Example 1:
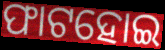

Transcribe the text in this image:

ଫାଟହୋଇ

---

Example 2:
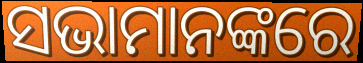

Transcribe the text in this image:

ସଭାମାନଙ୍କରେ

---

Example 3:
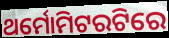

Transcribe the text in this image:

ଥର୍ମୋମିଟରଟିରେ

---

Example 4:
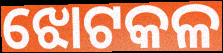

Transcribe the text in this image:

ଝୋଟକଳ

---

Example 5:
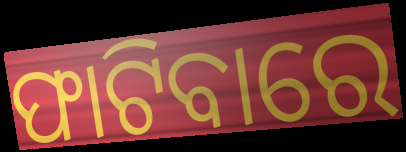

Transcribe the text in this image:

ଫାଟିବାରେ